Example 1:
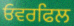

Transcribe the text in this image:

ਓਵਰਫਿਲ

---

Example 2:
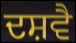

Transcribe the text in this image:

ਦਸ਼ਵੈ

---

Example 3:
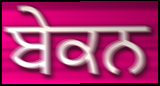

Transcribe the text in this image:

ਬੇਕਨ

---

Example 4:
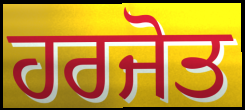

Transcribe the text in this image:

ਹਰਜੋਤ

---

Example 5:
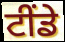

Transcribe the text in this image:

ਟੀਂਡੇ